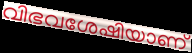
വിഭവശേഷിയാണ്